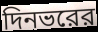
দিনভরের